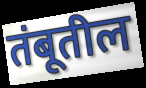
तंबूतील